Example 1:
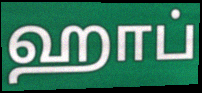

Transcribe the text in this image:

ஹாப்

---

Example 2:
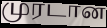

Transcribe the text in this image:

முரடான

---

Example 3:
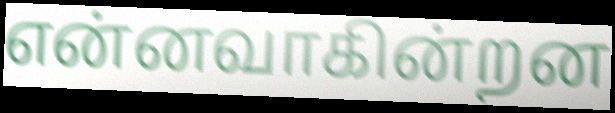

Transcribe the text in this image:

என்னவாகின்றன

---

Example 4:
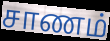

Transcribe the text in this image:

சாணம்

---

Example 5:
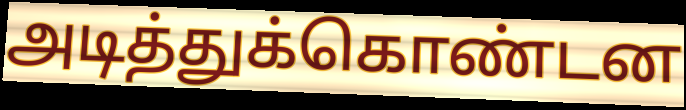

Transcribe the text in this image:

அடித்துக்கொண்டன